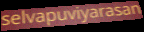
selvapuviyarasan